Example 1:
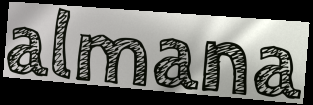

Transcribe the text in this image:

almana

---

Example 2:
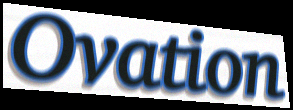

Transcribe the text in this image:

Ovation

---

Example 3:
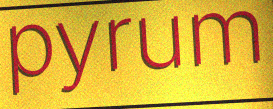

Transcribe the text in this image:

pyrum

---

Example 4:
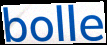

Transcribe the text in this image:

bolle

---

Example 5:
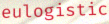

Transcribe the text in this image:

eulogistic